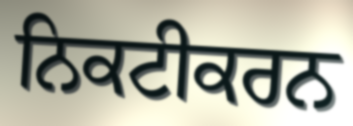
ਨਿਕਟੀਕਰਨ